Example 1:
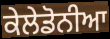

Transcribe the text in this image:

ਕੇਲੇਡੋਨੀਆ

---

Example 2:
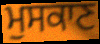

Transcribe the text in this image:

ਮੁਸਕਾਣ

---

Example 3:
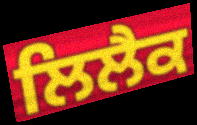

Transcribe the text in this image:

ਲਿਲੈਕ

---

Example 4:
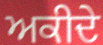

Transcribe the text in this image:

ਅਕੀਦੇ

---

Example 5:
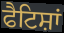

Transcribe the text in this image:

ਫੈਟਿਸ਼ਾਂ